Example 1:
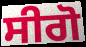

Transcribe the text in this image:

ਸੀਗੋ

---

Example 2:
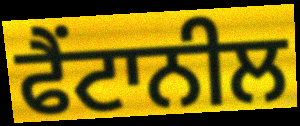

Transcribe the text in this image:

ਫੈਂਟਾਨੀਲ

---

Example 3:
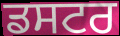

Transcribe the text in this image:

ਡਸਟਰ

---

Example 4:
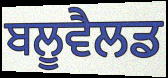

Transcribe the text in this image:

ਬਲੂਵੈਲਡ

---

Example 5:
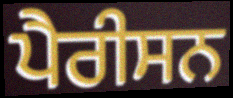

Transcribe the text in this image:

ਪੈਰੀਸਨ